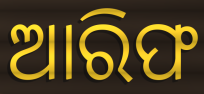
ଆରିଫ